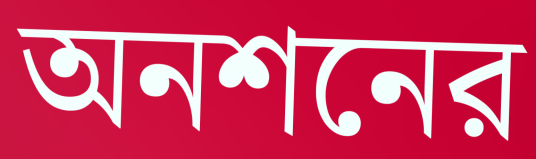
অনশনের